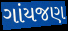
ગાંયજણ